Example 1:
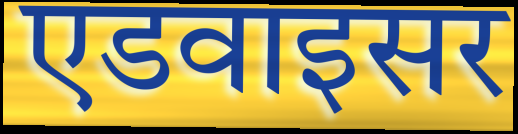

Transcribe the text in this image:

एडवाइसर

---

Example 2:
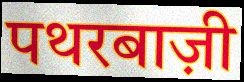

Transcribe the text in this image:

पथरबाज़ी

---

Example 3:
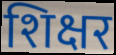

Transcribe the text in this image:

शिक्षर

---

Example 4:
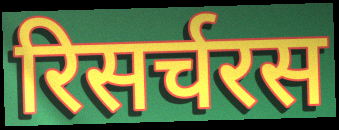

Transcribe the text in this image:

रिसर्चरस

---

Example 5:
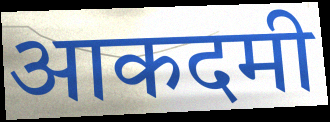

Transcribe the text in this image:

आकदमी